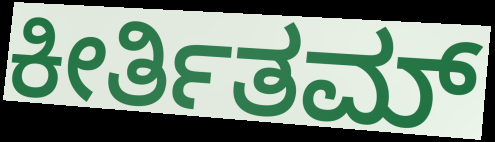
ಕೀರ್ತಿತಮ್